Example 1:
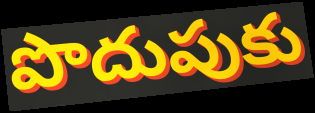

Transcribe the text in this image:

పొదుపుకు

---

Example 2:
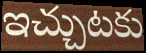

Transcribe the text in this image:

ఇచ్చుటకు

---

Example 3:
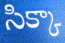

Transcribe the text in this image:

సిక్కా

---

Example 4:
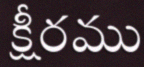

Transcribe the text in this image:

క్షీరము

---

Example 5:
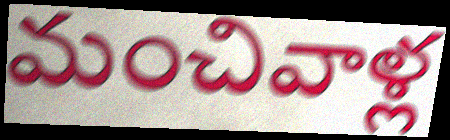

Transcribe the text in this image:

మంచివాళ్ల